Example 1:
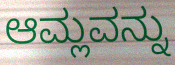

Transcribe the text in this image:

ಆಮ್ಲವನ್ನು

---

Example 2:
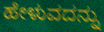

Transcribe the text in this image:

ಹೇಳುವದನ್ನು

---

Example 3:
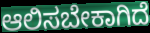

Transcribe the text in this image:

ಆಲಿಸಬೇಕಾಗಿದೆ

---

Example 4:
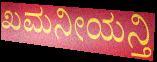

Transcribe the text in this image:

ಖಮನೀಯನ್ತಿ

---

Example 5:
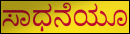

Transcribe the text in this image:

ಸಾಧನೆಯೂ